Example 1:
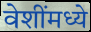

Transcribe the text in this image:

वेशींमध्ये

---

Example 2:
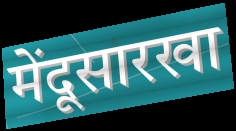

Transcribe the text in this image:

मेंदूसारखा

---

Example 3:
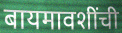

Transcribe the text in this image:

बायमावशींची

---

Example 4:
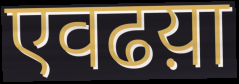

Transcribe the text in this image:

एवढय़ा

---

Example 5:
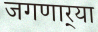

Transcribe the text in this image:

जगणार्या